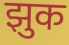
झुक